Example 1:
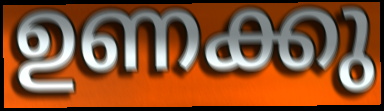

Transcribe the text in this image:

ഉണക്കു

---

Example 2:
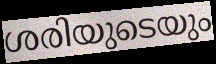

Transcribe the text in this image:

ശരിയുടെയും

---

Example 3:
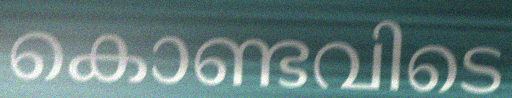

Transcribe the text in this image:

കൊണ്ടവിടെ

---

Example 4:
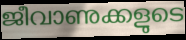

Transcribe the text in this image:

ജീവാണുക്കളുടെ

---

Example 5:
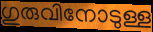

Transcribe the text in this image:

ഗുരുവിനോടുള്ള